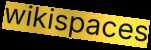
wikispaces